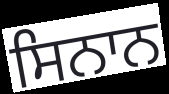
ਸਿਨਾਨ